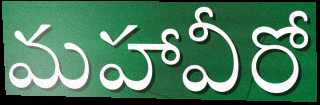
మహావీరో